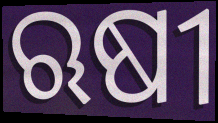
ଋଷୀ